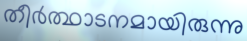
തീർത്ഥാടനമായിരുന്നു